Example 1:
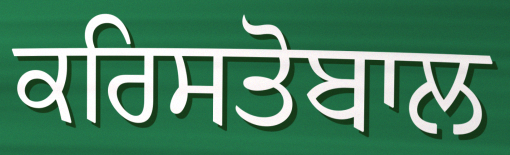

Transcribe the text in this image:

ਕਰਿਸਤੋਬਾਲ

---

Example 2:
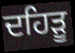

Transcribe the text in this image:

ਦਹਿੜੂ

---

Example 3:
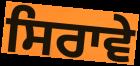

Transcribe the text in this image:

ਸਿਰਾਵੇ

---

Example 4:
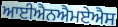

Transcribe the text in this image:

ਆਈਐਨਐਮਏਐਸ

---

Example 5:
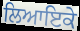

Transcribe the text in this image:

ਲਿਆਇਕੇ